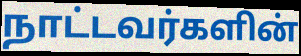
நாட்டவர்களின்